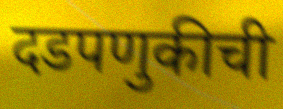
दडपणुकीची